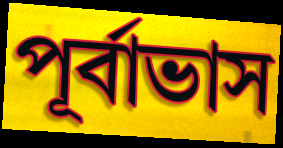
পূর্বাভাস